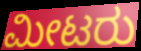
ಮೀಟರು